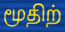
மூதிற்